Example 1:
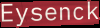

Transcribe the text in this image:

Eysenck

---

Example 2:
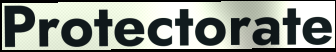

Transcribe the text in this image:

Protectorate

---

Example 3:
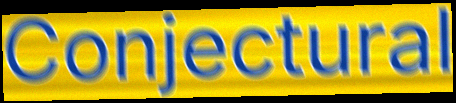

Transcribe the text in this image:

Conjectural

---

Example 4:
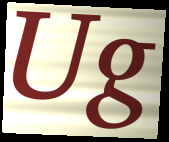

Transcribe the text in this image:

Ug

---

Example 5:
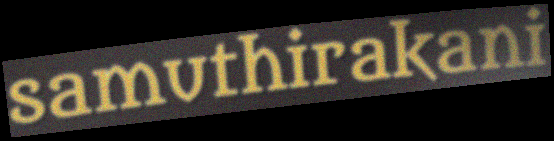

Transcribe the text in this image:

samuthirakani